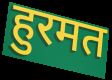
हुरमत